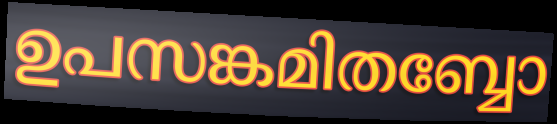
ഉപസങ്കമിതബ്ബോ